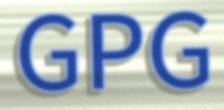
GPG